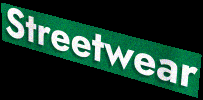
Streetwear